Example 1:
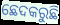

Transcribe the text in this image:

ଛେଦକରୁଛି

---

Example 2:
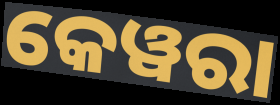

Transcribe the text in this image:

କେୱରା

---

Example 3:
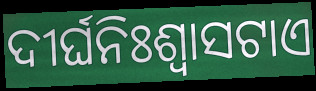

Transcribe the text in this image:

ଦୀର୍ଘନିଃଶ୍ୱାସଟାଏ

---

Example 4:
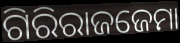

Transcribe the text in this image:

ଗିରିରାଜଜେମା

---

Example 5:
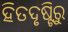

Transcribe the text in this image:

ହିତଦୃଷ୍ଟିରୁ